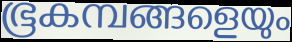
ഭൂകമ്പങ്ങളെയും